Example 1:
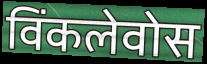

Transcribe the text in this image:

विंकलेवोस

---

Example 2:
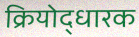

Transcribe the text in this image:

क्रियोद्धारक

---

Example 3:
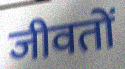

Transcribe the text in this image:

जीवतों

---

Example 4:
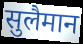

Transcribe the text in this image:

सुलैमान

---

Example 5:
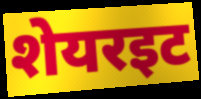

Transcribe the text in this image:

शेयरइट